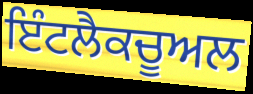
ਇੰਟਲੈਕਚੂਅਲ